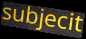
subjecit